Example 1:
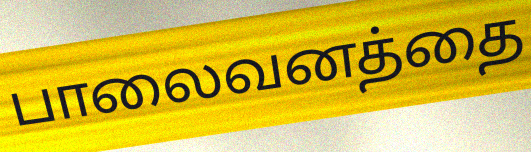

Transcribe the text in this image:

பாலைவனத்தை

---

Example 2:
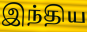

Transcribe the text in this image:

இந்திய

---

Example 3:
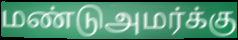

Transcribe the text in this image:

மண்டுஅமர்க்கு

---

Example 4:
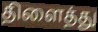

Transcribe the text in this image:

திளைத்து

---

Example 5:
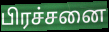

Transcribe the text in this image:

பிரச்சனை